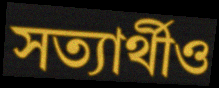
সত্যার্থীও